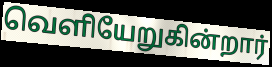
வெளியேறுகின்றார்